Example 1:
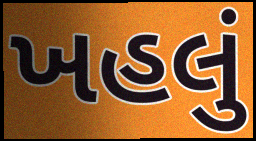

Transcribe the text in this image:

ખહલું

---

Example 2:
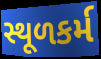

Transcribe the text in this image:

સ્થૂળકર્મ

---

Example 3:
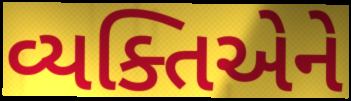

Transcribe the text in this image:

વ્યક્તિએને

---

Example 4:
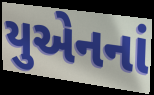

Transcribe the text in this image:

યુએનનાં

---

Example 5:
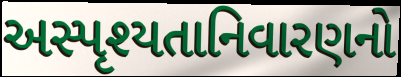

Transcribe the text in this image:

અસ્પૃશ્યતાનિવારણનો